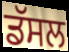
ਡੱਸਲ